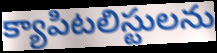
క్యాపిటలిస్టులను